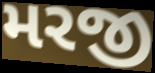
મરજી